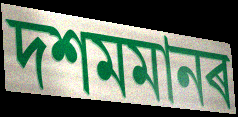
দশমমানৰ